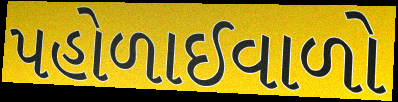
પહોળાઈવાળો